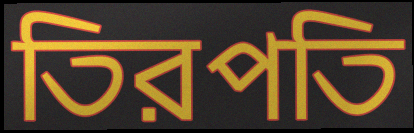
তিরপতি